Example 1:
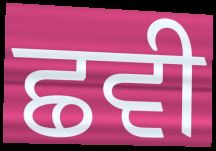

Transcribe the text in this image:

ਛਵੀ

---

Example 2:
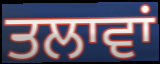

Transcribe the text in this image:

ਤਲਾਵਾਂ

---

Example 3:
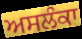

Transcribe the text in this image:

ਅਸਲੰਕਾ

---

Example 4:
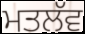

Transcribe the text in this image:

ਮਤਲੱਵ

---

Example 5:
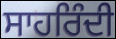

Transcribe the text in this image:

ਸਾਹਰਿੰਦੀ